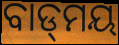
ବାଡ୍‌ମୟ